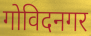
गोविदनगर